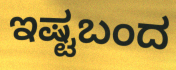
ಇಷ್ಟಬಂದ